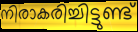
നിരാകരിച്ചിട്ടുണ്ട്